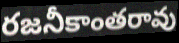
రజనీకాంతరావు